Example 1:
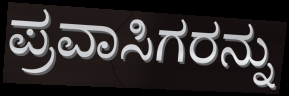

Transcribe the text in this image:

ಪ್ರವಾಸಿಗರನ್ನು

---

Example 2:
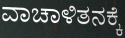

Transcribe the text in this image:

ವಾಚಾಳಿತನಕ್ಕೆ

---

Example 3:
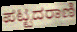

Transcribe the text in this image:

ಪಟ್ಟದರಾಣಿ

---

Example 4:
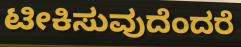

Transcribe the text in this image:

ಟೀಕಿಸುವುದೆಂದರೆ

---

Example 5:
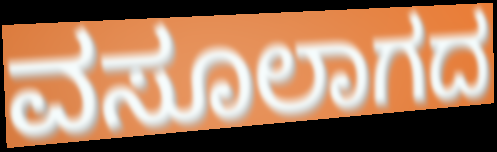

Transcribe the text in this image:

ವಸೂಲಾಗದ